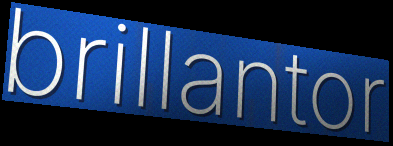
brillantor